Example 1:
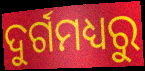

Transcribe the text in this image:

ଦୁର୍ଗମଧ୍ୟରୁ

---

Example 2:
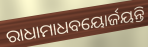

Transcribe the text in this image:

ରାଧାମାଧବୟୋର୍ଜୟନ୍ତି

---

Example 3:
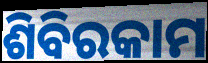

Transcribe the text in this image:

ଶିବିରକାମ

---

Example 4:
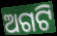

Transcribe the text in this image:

ଅଗଟି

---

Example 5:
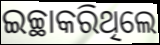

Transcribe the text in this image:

ଇଚ୍ଛାକରିଥିଲେ